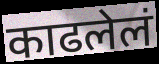
काढलेलं